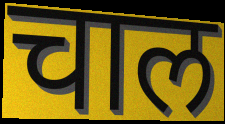
चाल